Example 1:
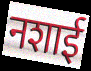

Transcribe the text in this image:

नशाई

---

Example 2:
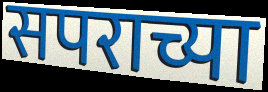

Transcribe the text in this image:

सपराच्या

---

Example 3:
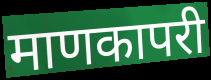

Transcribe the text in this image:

माणकापरी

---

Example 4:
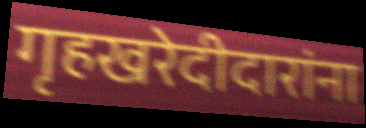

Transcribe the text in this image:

गृहखरेदीदारांना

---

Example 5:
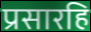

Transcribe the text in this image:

प्रसारहि